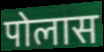
पोलास